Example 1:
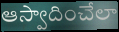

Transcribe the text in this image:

ఆస్వాదించేలా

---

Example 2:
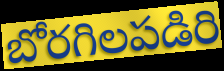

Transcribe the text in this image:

బోరగిలపడిరి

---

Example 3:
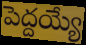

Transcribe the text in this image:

పెద్దయ్యే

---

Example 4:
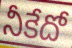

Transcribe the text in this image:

నీకేదో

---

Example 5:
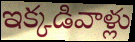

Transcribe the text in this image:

ఇక్కడివాళ్లు